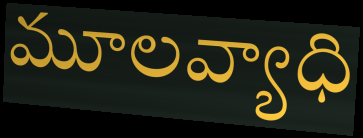
మూలవ్యాధి